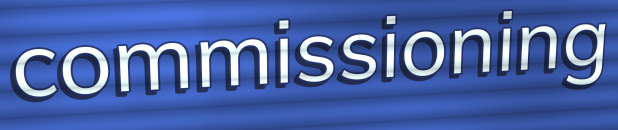
commissioning